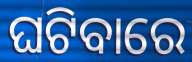
ଘଟିବାରେ